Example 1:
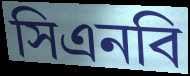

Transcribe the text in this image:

সিএনবি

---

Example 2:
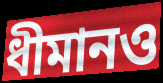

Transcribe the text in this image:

ধীমানও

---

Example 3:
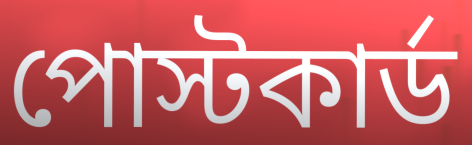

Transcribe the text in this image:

পোস্টকার্ড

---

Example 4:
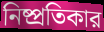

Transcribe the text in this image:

নিষ্প্রতিকার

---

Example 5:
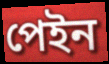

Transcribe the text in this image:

পেইন